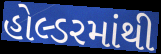
હોલ્ડરમાંથી